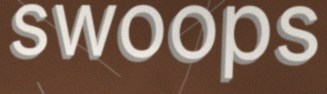
swoops